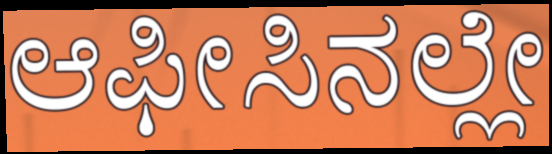
ಆಫೀಸಿನಲ್ಲೇ